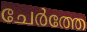
ചേർത്തേ